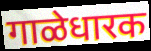
गाळेधारक